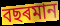
বছৰমান